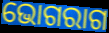
ଭୋଗରାଗ